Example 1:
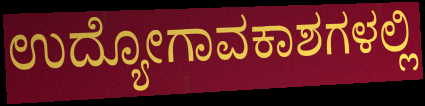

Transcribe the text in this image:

ಉದ್ಯೋಗಾವಕಾಶಗಳಲ್ಲಿ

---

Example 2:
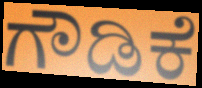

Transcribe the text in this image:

ಗೌಡಿಕೆ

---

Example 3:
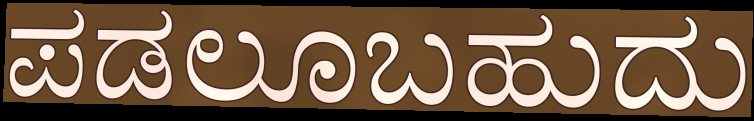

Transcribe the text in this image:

ಪಡಲೂಬಹುದು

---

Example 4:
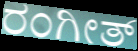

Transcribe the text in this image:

ರಂಗೀತ್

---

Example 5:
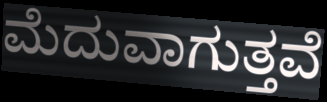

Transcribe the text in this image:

ಮೆದುವಾಗುತ್ತವೆ